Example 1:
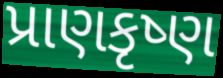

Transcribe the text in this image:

પ્રાણકૃષ્ણ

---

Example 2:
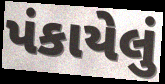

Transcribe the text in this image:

પંકાયેલું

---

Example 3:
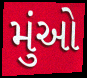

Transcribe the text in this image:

મુંઓ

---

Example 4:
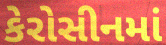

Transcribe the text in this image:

કેરોસીનમાં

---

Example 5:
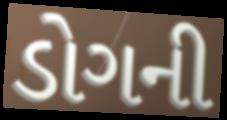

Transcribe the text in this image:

ડોગની